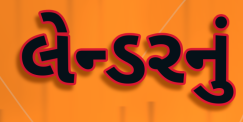
લેન્ડરનું